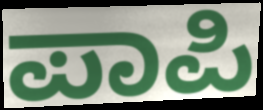
ಪಾಪಿ